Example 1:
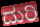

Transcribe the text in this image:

ದುರಿ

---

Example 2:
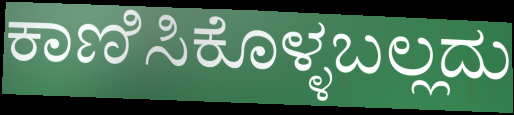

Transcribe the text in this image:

ಕಾಣಿಸಿಕೊಳ್ಳಬಲ್ಲದು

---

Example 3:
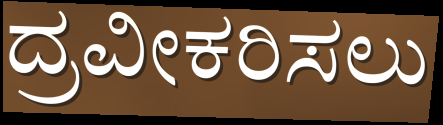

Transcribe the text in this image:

ದ್ರವೀಕರಿಸಲು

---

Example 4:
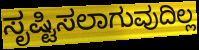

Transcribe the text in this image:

ಸೃಷ್ಟಿಸಲಾಗುವುದಿಲ್ಲ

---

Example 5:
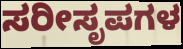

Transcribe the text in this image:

ಸರೀಸೃಪಗಳ